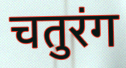
चतुरंग